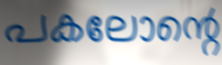
പകലോന്റെ